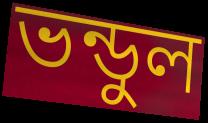
ভন্ডুল